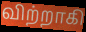
விற்றாகி